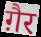
ग़ैर